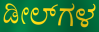
ಡೀಲ್‌ಗಳ